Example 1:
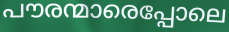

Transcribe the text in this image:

പൗരന്മാരെപ്പോലെ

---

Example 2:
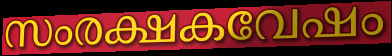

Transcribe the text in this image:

സംരക്ഷകവേഷം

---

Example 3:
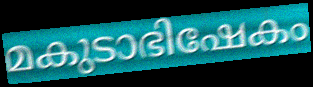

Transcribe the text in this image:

മകുടാഭിഷേകം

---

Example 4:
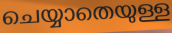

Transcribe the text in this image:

ചെയ്യാതെയുള്ള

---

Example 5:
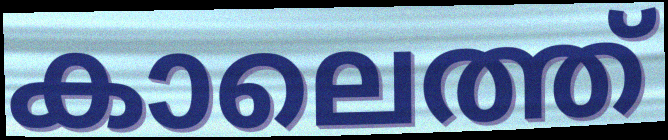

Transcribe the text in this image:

കാലെത്ത്